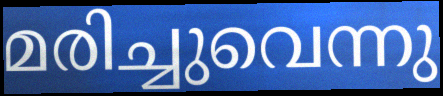
മരിച്ചുവെന്നു